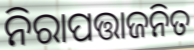
ନିରାପତ୍ତାଜନିତ